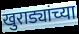
खुराड्यांच्या